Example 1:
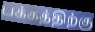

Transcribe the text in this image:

பக்கத்திற்கு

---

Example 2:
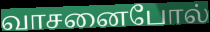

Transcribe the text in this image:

வாசனைபோல்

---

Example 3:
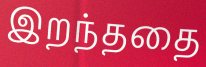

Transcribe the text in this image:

இறந்ததை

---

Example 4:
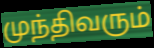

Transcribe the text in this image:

முந்திவரும்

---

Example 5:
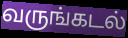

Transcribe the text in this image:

வருங்கடல்